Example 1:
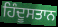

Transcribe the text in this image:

ਹਿੰਦੂਸਤਾਨ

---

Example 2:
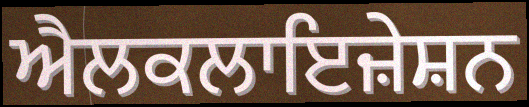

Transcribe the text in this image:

ਐਲਕਲਾਇਜ਼ੇਸ਼ਨ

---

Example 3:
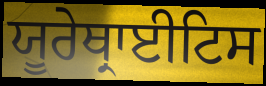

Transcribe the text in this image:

ਯੂਰੇਥ੍ਰਾਈਟਿਸ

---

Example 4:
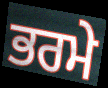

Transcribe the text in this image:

ਭਰਮੇ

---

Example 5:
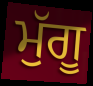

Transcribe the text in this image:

ਮੁੱਗੂ